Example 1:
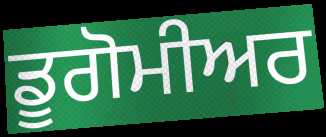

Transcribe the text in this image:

ਡੂਗੋਮੀਅਰ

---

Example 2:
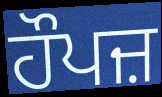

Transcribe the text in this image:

ਹੌਪਜ਼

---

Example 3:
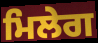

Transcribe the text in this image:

ਮਿਲੇਗ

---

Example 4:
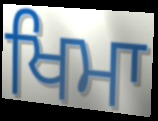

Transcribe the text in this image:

ਖਿਮਾ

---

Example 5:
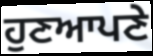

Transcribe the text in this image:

ਹੁਣਆਪਣੇ